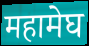
महामेघ